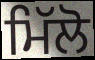
ਮਿੱਲੋ